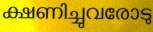
ക്ഷണിച്ചുവരോടു